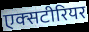
एक्‍सटीरियर